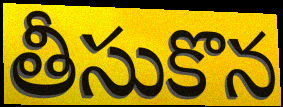
తీసుకొన